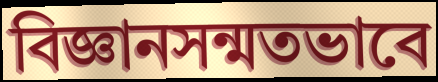
বিজ্ঞানসন্মতভাবে